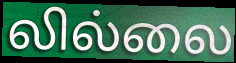
லில்லை